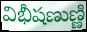
విభీషణుణ్ణి